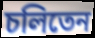
চলিতেন